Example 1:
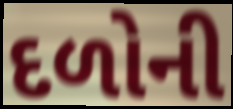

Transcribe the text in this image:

દળોની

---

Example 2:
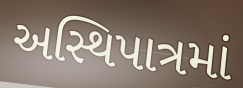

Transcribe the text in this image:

અસ્થિપાત્રમાં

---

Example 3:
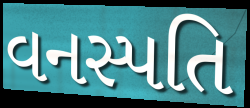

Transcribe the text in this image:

વનસ્પતિ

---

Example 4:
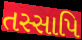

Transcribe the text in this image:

તસ્સાપિ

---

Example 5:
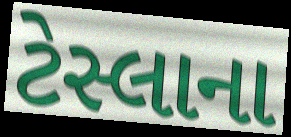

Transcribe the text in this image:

ટેસ્લાના